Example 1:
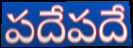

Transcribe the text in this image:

పదేపదే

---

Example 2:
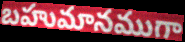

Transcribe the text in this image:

బహుమానముగా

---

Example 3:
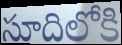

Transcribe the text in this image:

సూదిలోకి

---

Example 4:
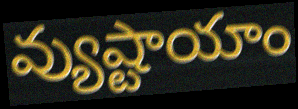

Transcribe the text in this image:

వ్యుష్టాయాం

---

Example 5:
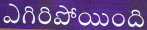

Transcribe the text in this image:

ఎగిరిపోయింది